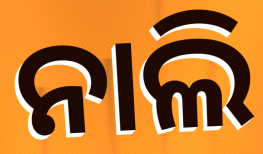
ନାଲି